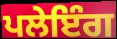
ਪਲੇਇੰਗ